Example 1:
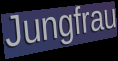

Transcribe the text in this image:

Jungfrau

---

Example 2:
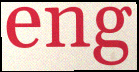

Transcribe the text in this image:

eng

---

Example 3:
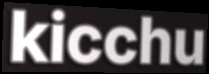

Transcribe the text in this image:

kicchu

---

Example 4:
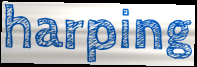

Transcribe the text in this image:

harping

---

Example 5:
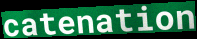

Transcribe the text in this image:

catenation